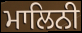
ਮਾਲਿਨੀ